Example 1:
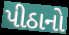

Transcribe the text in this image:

પીઠાનો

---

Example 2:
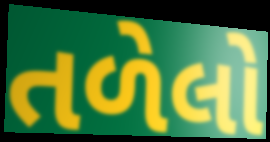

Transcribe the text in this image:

તળેલો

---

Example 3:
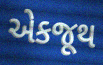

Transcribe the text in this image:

એકજૂથ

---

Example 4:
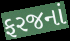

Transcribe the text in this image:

ફરજનાં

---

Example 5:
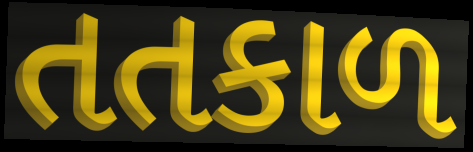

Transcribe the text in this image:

તતકાળ